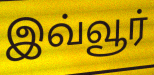
இவ்வூர்